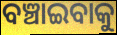
ବଞ୍ଚାଇବାକୁ